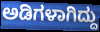
ಅಡಿಗಳಾಗಿದ್ದು